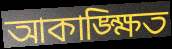
আকাঙ্ক্ষিত